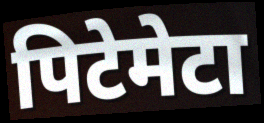
पिटेमेटा